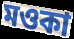
মওকা